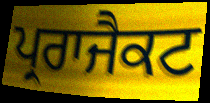
ਪ੍ਰਰਾਜੈਕਟ